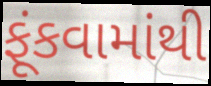
ફૂંકવામાંથી